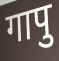
गापु